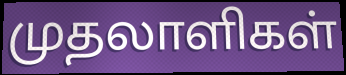
முதலாளிகள்